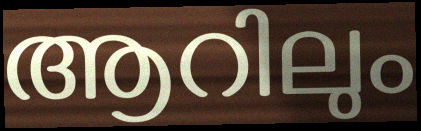
ആറിലും